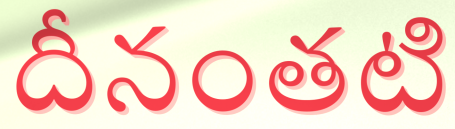
దీనంతటి